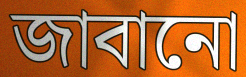
জাবানো